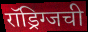
रॉड्रिग्जची